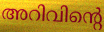
അറിവിന്റെ